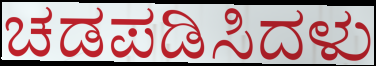
ಚಡಪಡಿಸಿದಳು